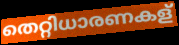
തെറ്റിധാരണകള്